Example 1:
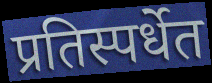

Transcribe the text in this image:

प्रतिस्पर्धेत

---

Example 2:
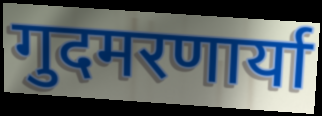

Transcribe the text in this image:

गुदमरणार्या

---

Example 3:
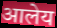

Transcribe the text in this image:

आलेय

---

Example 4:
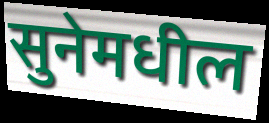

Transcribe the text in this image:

सुनेमधील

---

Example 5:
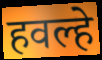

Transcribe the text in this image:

हवल्हे